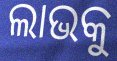
ଲାଭକୁ